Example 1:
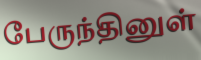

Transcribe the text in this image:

பேருந்தினுள்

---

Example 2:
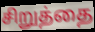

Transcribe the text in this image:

சிறுத்தை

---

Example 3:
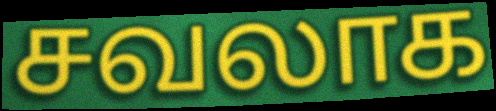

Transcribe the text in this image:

சவலாக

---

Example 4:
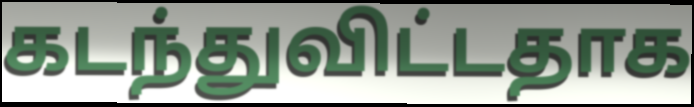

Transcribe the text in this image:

கடந்துவிட்டதாக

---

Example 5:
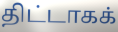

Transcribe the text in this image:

திட்டாகக்